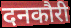
दनकौरी